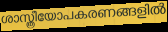
ശാസ്ത്രീയോപകരണങ്ങളിൽ